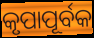
କୃପାପୂର୍ବକ